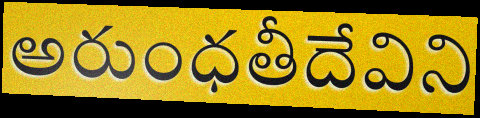
అరుంధతీదేవిని